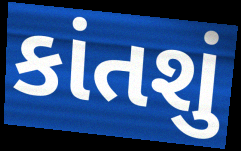
કાંતશું